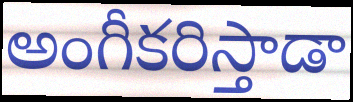
అంగీకరిస్తాడా